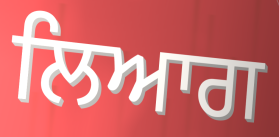
ਲਿਆਗ